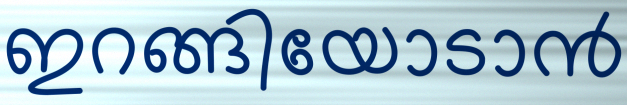
ഇറങ്ങിയോടാൻ